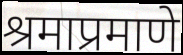
श्रमाप्रमाणे